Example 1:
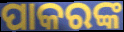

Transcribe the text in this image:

ପାକରଙ୍କ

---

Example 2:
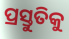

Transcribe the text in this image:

ପ୍ରସ୍ତୁତିକୁ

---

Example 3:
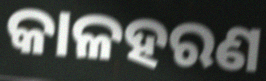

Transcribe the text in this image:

କାଳହରଣ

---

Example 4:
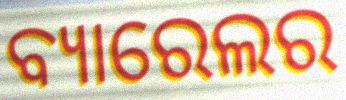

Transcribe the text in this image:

ବ୍ୟାରେଲର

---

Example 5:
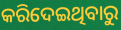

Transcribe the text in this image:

କରିଦେଇଥିବାରୁ